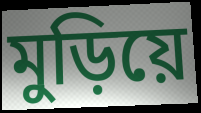
মুড়িয়ে